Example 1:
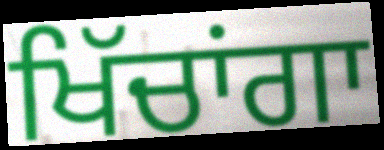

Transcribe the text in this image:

ਖਿੱਚਾਂਗਾ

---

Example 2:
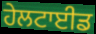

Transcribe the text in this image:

ਹੇਲਟਾਈਡ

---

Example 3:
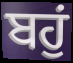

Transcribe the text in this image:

ਬਹੁਂ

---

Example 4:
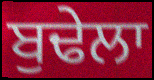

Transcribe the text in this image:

ਬੁਢੇਲਾ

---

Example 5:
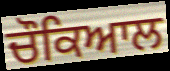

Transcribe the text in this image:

ਚੌਕਿਆਲ